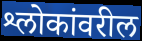
श्लोकांवरील